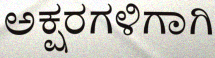
ಅಕ್ಷರಗಳಿಗಾಗಿ